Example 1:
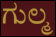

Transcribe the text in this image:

ಗುಲ್ಮ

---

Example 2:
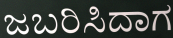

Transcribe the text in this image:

ಜಬರಿಸಿದಾಗ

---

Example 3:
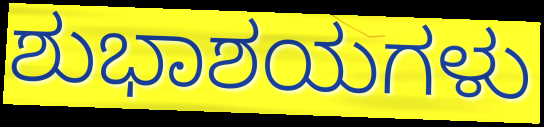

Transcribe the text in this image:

ಶುಭಾಶಯಗಳು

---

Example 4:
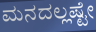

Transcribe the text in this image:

ಮನದಲ್ಲಷ್ಟೇ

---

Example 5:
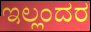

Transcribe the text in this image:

ಇಲ್ಲಂದರ